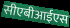
सीएबीआईएस